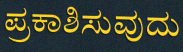
ಪ್ರಕಾಶಿಸುವುದು